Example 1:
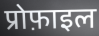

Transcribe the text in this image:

प्रोफ़ाइल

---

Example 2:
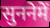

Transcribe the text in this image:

सुननेमें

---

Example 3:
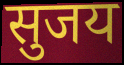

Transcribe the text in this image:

सुजय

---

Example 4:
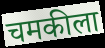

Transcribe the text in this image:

चमकीला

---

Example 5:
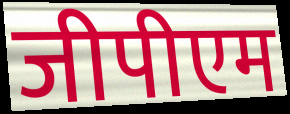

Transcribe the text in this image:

जीपीएम